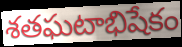
శతఘటాభిషేకం